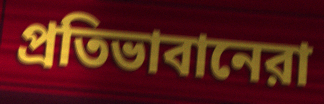
প্রতিভাবানেরা